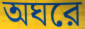
অঘরে